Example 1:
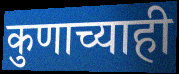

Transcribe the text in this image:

कुणाच्याही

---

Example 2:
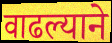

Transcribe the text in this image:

वाढल्याने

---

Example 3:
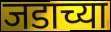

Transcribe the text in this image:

जडाच्या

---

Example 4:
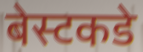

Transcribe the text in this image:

बेस्टकडे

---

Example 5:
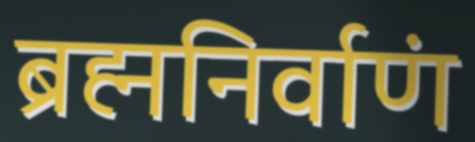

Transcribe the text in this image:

ब्रह्मनिर्वाणं